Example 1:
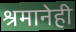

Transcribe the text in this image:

श्रमानेही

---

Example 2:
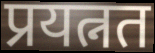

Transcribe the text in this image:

प्रयत्नत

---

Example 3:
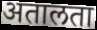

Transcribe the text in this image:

अतालता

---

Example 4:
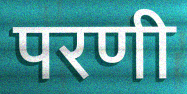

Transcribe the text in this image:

परणी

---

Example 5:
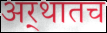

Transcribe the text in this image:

अर्थातच